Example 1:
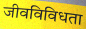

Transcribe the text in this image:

जीवविविधता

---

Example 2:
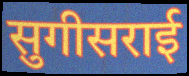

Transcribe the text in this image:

सुगीसराई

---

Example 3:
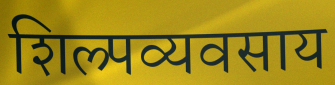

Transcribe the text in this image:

शिल्पव्यवसाय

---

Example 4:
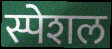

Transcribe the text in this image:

स्पेशल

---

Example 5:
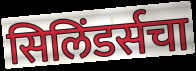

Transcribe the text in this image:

सिलिंडर्सचा